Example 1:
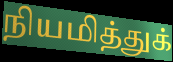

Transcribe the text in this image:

நியமித்துக்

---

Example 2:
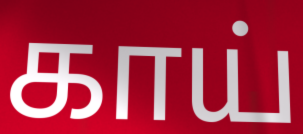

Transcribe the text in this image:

காய்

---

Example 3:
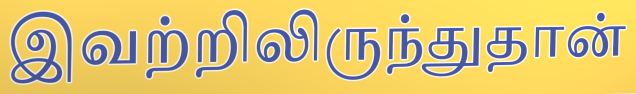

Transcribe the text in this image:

இவற்றிலிருந்துதான்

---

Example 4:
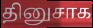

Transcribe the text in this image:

தினுசாக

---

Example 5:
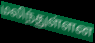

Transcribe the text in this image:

மலிந்துள்ளன